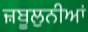
ਜ਼ਬੂਲੁਨੀਆਂ